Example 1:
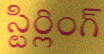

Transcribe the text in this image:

స్టిర్లింగ్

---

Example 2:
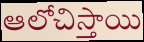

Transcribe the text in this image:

ఆలోచిస్తాయి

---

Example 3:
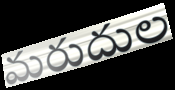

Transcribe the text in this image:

మరుదుల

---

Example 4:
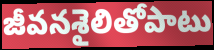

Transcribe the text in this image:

జీవనశైలితోపాటు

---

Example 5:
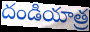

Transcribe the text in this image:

దండియాత్ర